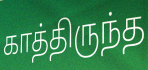
காத்திருந்த